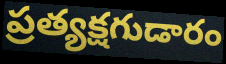
ప్రత్యక్షగుడారం